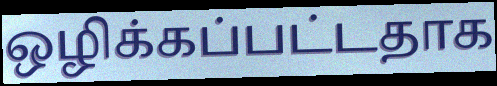
ஒழிக்கப்பட்டதாக